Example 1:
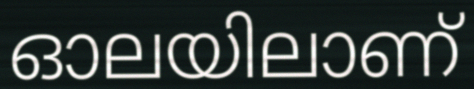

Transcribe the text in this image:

ഓലയിലാണ്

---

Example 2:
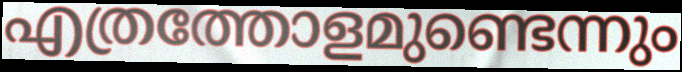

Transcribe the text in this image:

എത്രത്തോളമുണ്ടെന്നും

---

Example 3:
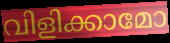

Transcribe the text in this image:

വിളിക്കാമോ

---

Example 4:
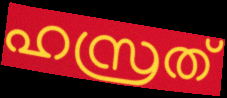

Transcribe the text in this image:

ഹസ്രത്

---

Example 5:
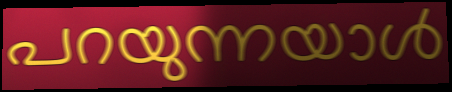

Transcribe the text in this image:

പറയുന്നയാൾ